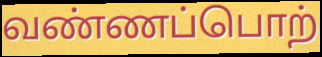
வண்ணப்பொற்